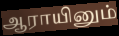
ஆராயினும்